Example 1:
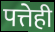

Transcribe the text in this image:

पत्तेही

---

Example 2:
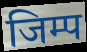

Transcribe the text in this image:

जिम्प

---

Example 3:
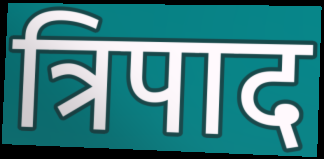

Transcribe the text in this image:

त्रिपाद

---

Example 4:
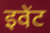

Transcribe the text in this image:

इवेंट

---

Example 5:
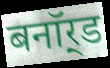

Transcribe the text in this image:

बनॉर्ड